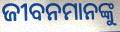
ଜୀବନମାନଙ୍କୁ